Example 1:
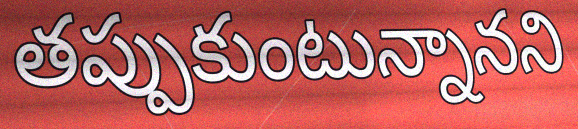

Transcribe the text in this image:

తప్పుకుంటున్నానని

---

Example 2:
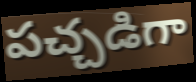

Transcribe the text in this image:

పచ్చడిగా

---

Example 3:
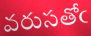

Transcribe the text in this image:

వరుసతోఁ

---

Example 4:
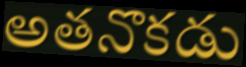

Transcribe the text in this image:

అతనొకడు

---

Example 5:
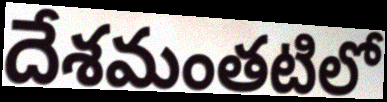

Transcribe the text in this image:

దేశమంతటిలో